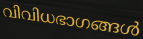
വിവിധഭാഗങ്ങൾ